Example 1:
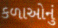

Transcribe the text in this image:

કળાઓનું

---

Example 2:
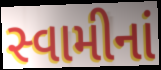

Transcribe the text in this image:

સ્વામીનાં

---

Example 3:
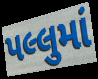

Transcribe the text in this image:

પલ્લુમાં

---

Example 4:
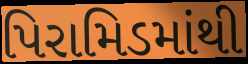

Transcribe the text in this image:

પિરામિડમાંથી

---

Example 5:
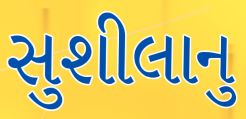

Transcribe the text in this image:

સુશીલાનુ